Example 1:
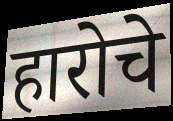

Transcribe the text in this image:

हारोचे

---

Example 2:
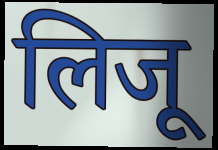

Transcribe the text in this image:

लिजू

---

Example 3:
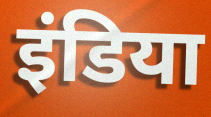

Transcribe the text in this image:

इंडिया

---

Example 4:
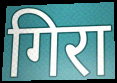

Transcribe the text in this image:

गिरा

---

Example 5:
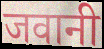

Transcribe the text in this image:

जवानी